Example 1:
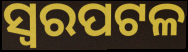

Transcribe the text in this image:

ସ୍ୱରପଟଳ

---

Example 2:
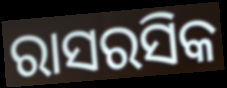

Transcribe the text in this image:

ରାସରସିକ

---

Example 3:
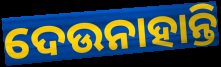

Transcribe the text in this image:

ଦେଉନାହାନ୍ତି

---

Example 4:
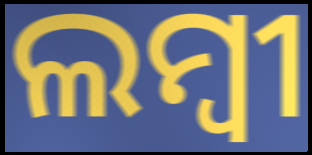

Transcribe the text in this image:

ଲମ୍ବୀ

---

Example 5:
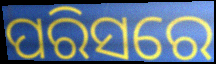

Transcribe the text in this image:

ପରିସରେ